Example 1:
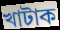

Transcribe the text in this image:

খাটাক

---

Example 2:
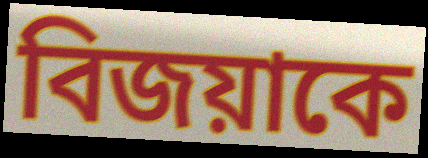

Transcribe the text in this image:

বিজয়াকে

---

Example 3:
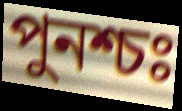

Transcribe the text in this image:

পুনশ্চঃ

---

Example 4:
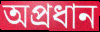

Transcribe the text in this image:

অপ্রধান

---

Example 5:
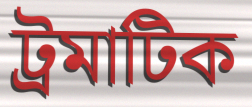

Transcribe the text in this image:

ট্রমাটিক